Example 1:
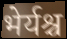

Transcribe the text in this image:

भेर्यश्च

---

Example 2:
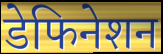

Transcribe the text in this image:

डेफिनेशन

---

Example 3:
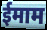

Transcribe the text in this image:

ईमाम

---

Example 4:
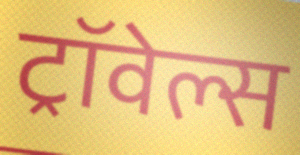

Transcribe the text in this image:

ट्रॉवेल्स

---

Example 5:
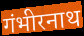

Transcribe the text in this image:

गंभीरनाथ